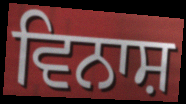
ਵਿਨਾਸ਼